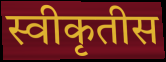
स्वीकृतीस